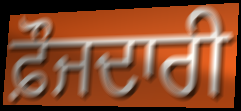
ਫ਼ੌਜਦਾਰੀ